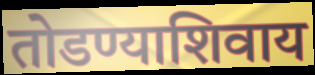
तोडण्याशिवाय